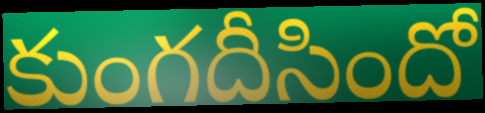
కుంగదీసిందో